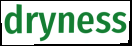
dryness